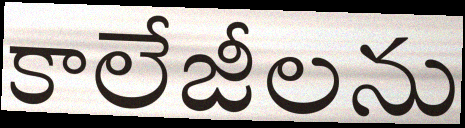
కాలేజీలను